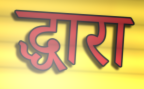
द्धारा